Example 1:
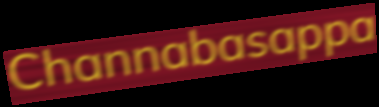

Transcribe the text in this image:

Channabasappa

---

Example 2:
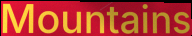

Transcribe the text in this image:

Mountains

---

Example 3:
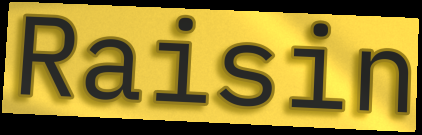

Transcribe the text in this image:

Raisin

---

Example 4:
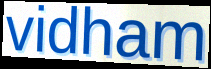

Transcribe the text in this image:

vidham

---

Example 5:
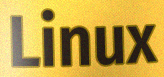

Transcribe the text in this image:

Linux